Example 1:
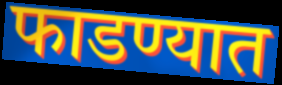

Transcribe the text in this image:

फाडण्यात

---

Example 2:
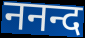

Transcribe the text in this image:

ननन्द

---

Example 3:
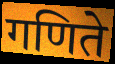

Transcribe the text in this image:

गणिते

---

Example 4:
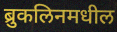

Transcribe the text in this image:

ब्रुकलिनमधील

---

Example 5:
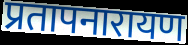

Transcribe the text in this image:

प्रतापनारायण